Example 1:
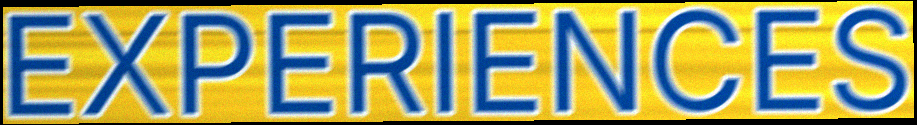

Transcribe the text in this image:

EXPERIENCES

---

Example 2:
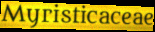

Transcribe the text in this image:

Myristicaceae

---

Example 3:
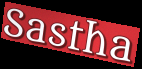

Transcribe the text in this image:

Sastha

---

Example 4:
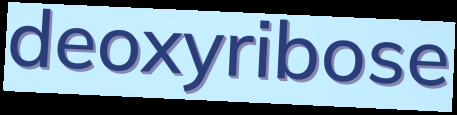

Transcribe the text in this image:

deoxyribose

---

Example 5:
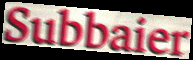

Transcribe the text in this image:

Subbaier